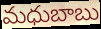
మధుబాబు